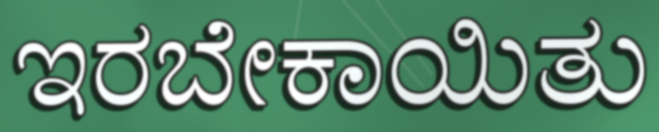
ಇರಬೇಕಾಯಿತು